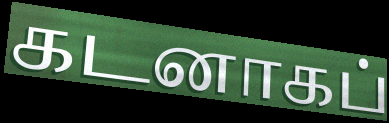
கடனாகப்